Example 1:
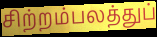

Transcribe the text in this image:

சிற்றம்பலத்துப்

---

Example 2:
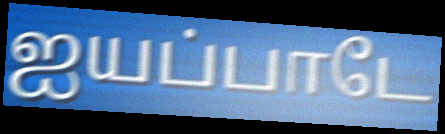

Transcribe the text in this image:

ஐயப்பாடே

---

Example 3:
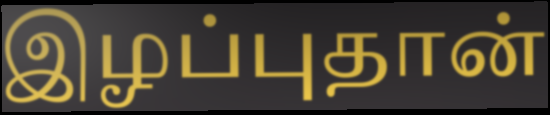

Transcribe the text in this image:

இழப்புதான்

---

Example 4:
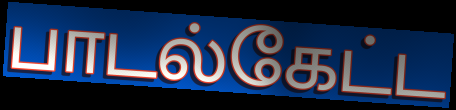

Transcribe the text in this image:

பாடல்கேட்ட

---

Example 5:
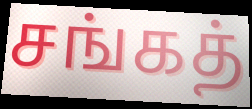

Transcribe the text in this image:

சங்கத்